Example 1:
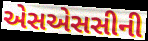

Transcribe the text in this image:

એસએસસીની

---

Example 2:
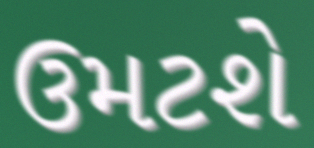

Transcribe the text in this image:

ઉમટશે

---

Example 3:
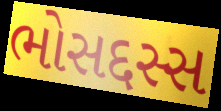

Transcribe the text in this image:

ભોસદ્દસ્સ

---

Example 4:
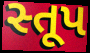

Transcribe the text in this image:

સ્તૂપ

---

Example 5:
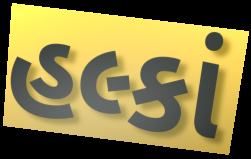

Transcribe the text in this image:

હલ્કાં